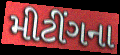
મીટીંગના